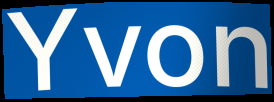
Yvon